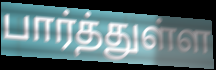
பார்த்துள்ள